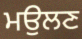
ਮਉਲਣ